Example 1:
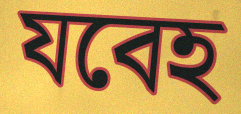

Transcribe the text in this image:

যবেহ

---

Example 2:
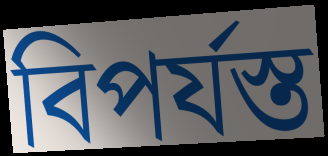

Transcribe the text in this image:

বিপর্যস্ত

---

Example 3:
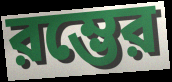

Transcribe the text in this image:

রম্ভের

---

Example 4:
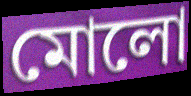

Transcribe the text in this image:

মোলো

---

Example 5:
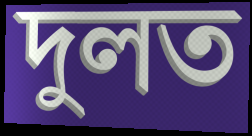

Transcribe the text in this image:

দুলত